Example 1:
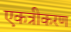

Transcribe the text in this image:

एकत्रीकरण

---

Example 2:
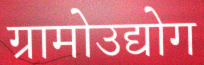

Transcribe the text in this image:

ग्रामोउद्योग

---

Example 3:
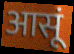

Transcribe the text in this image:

आसूं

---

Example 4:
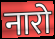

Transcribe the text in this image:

नारो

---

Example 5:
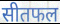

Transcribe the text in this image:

सीतफल